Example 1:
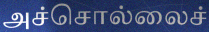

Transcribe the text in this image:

அச்சொல்லைச்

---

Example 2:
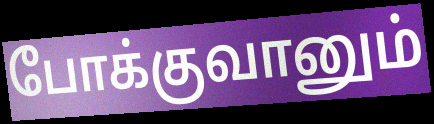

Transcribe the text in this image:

போக்குவானும்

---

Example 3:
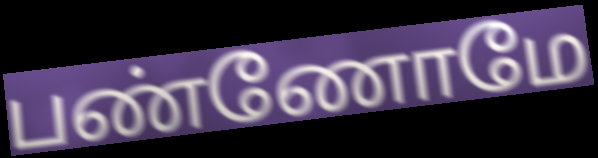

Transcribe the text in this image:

பண்ணோமே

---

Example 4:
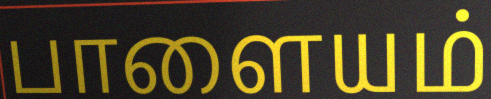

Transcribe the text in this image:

பாளையம்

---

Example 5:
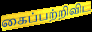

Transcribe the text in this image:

கைப்பற்றிவிட